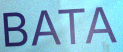
BATA